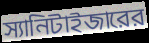
স্যানিটাইজারের